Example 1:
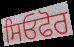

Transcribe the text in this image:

ਸਿਓਫੋਰ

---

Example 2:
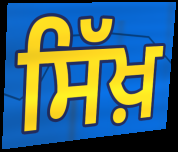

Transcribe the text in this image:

ਸਿੱਖ਼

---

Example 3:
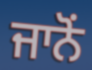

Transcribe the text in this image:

ਜਾਨੋਂ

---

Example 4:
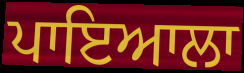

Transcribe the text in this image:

ਪਾਇਆਲਾ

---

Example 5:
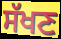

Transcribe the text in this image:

ਸੱਖਣ